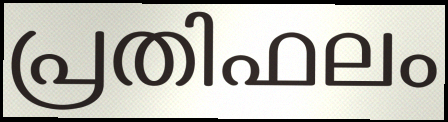
പ്രതിഫലം